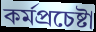
কর্মপ্রচেষ্টা